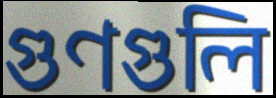
গুণগুলি